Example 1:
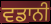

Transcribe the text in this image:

ਵਡਾਨੀ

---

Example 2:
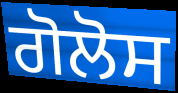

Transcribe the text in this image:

ਗੋਲੋਸ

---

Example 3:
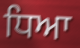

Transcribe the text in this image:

ਧਿਆ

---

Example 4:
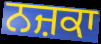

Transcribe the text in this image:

ਨਜ਼ਕਾ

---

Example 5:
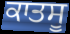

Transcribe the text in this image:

ਕਾਤਸੂ